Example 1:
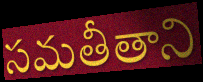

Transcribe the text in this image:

సమతీతాని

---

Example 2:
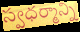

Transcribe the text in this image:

స్వధర్మాన్ని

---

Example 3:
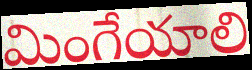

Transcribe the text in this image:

మింగేయాలి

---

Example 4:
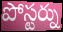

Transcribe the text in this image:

పోస్టర్ను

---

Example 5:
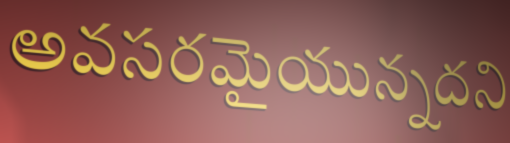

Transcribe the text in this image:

అవసరమైయున్నదని